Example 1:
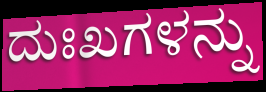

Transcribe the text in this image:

ದುಃಖಗಳನ್ನು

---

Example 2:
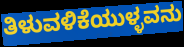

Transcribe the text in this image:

ತಿಳುವಳಿಕೆಯುಳ್ಳವನು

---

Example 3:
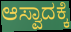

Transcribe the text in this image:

ಆಸ್ವಾದಕ್ಕೆ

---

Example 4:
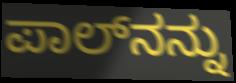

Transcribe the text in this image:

ಪಾಲ್‍ನನ್ನು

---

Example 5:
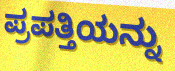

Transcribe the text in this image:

ಪ್ರಪತ್ತಿಯನ್ನು